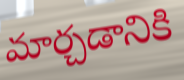
మార్చడానికి